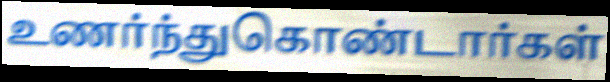
உணர்ந்துகொண்டார்கள்